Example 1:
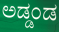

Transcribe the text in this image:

ಅಡ್ಡಂಡ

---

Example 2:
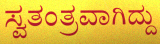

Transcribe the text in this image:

ಸ್ವತಂತ್ರವಾಗಿದ್ದು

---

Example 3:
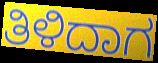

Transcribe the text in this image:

ತಿಳಿದಾಗ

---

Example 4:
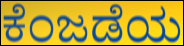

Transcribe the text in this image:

ಕೆಂಜಡೆಯ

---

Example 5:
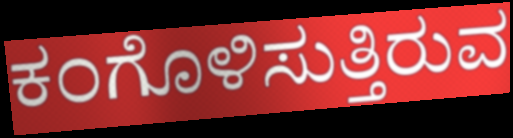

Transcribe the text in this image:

ಕಂಗೊಳಿಸುತ್ತಿರುವ